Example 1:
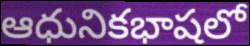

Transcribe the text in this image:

ఆధునికభాషలో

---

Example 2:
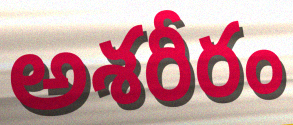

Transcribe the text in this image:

అశరీరం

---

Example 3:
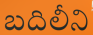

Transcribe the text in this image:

బదిలీని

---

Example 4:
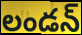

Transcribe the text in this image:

లండన్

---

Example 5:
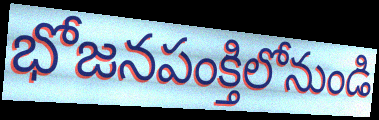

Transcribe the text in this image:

భోజనపంక్తిలోనుండి